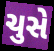
ચુસે